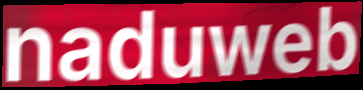
naduweb